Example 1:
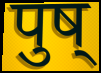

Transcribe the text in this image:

पुष्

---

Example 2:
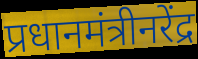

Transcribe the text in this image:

प्रधानमंत्रीनरेंद्र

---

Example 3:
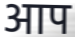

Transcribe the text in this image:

आप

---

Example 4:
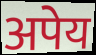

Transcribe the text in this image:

अपेय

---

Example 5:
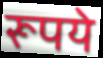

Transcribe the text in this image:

रूपये